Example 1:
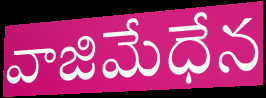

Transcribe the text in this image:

వాజిమేధేన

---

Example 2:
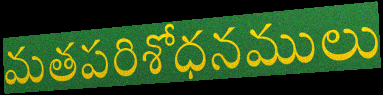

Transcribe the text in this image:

మతపరిశోధనములు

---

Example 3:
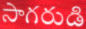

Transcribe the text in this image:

సాగరుడి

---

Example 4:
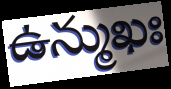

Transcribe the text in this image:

ఉన్ముఖః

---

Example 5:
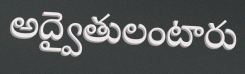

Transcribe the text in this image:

అద్వైతులంటారు